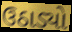
ઉઠાડ્યો